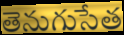
తెనుగుసేత